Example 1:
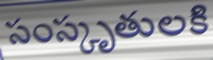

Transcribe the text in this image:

సంస్కృతులకి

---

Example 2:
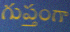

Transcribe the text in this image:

గుప్తంగా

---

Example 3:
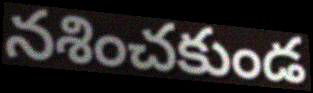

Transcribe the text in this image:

నశించకుండ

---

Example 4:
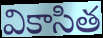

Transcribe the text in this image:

వికాసిత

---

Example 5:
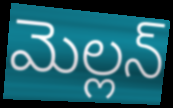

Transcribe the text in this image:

మెల్లన్